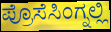
ಪ್ರೊಸೆಸಿಂಗ್ನಲ್ಲಿ